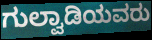
ಗುಲ್ವಾಡಿಯವರು